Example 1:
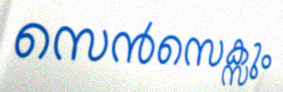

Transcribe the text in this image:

സെൻസെക്സും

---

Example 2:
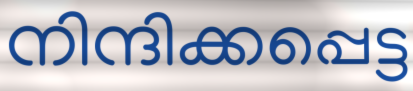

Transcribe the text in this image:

നിന്ദിക്കപ്പെട്ട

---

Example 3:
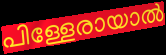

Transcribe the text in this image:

പിള്ളേരായാൽ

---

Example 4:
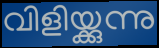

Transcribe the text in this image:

വിളിയ്ക്കുന്നു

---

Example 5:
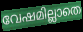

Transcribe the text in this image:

വേഷമില്ലാതെ